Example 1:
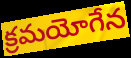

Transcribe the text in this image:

క్రమయోగేన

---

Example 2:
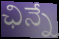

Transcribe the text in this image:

ఛిన్నే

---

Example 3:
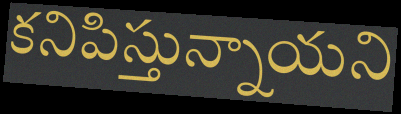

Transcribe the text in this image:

కనిపిస్తున్నాయని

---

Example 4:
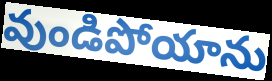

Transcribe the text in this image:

వుండిపోయాను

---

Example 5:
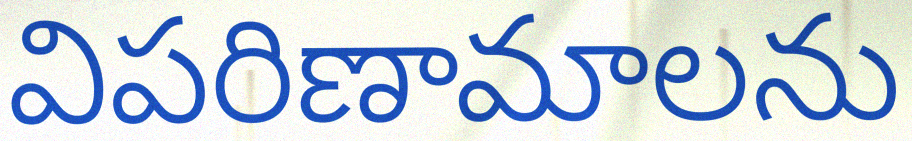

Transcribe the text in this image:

విపరిణామాలను